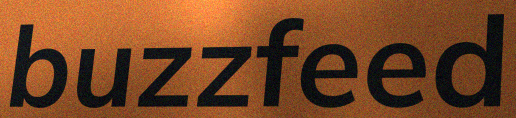
buzzfeed